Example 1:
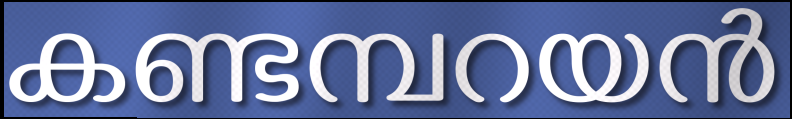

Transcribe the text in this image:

കണ്ടമ്പറയൻ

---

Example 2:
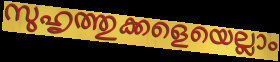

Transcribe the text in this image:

സുഹൃത്തുക്കളെയെല്ലാം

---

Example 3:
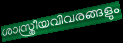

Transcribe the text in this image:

ശാസ്ത്രീയവിവരങ്ങളും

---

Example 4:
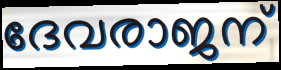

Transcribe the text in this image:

ദേവരാജന്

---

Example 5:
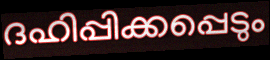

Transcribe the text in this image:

ദഹിപ്പിക്കപ്പെടും